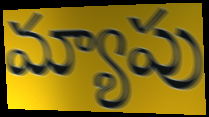
మ్యాపు